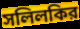
সলিলকির